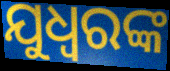
ଯୁଧ୍ୱରଙ୍କ